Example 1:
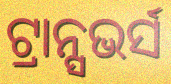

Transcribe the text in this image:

ଟ୍ରାନ୍ସଭର୍ସ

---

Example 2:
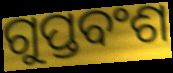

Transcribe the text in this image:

ଗୁପ୍ତବଂଶ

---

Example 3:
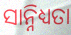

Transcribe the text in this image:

ସାନ୍ନିଧ୍ୟତା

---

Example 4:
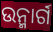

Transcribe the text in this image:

ଉନ୍ମାର୍ଗ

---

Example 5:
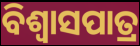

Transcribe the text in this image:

ବିଶ୍ୱାସପାତ୍ର